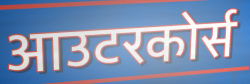
आउटरकोर्स